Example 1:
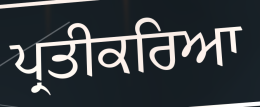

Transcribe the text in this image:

ਪ੍ਰਤੀਕਰਿਆ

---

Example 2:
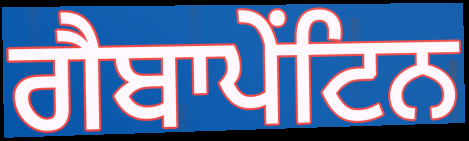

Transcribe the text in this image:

ਗੈਬਾਪੇਂਟਿਨ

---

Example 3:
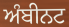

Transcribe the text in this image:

ਅੰਬੀਨਟ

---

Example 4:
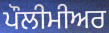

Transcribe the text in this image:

ਪੌਲੀਮੀਅਰ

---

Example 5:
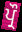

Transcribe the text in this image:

ਪ੍ਰੌ